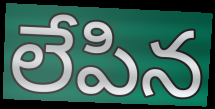
లేపిన